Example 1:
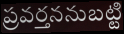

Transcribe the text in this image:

ప్రవర్తననుబట్టి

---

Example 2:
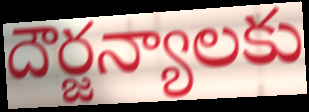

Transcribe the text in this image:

దౌర్జన్యాలకు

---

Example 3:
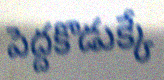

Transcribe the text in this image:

పెద్దకొడుక్కే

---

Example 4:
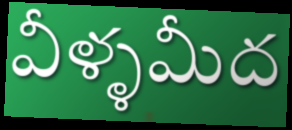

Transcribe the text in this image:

వీళ్ళమీద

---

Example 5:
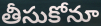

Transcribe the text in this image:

తీసుకోనూ